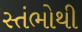
સ્તંભોથી